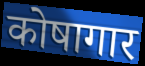
कोषागार